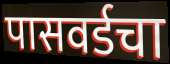
पासवर्डचा